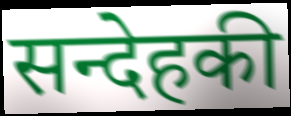
सन्देहकी